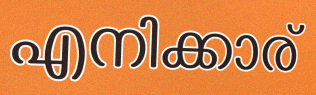
എനിക്കാര്